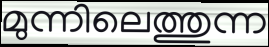
മുന്നിലെത്തുന്ന